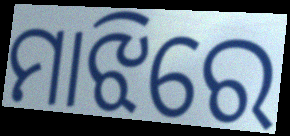
ମାଝିରେ